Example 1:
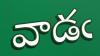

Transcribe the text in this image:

వాడఁ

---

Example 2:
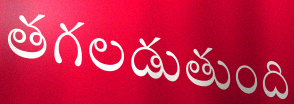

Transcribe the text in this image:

తగలడుతుంది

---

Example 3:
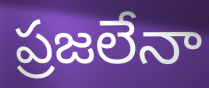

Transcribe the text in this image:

ప్రజలేనా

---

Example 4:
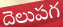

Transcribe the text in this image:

దెలుపగ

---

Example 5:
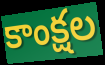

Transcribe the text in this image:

కాంక్షల